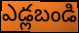
ఎడ్లబండి